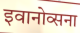
इवानोव्सना